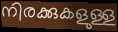
നിരക്കുകളുള്ള